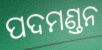
ପଦମଣ୍ଡନ